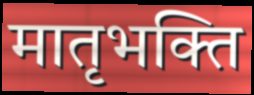
मातृभक्ति